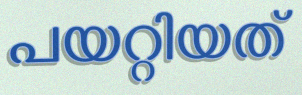
പയറ്റിയത്